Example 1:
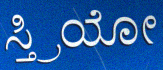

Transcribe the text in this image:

ಸ್ತ್ರಿಯೋ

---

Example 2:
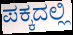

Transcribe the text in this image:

ಪಕ್ಕದಲ್ಲಿ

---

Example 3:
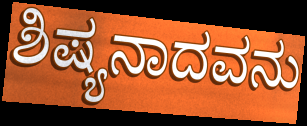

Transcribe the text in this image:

ಶಿಷ್ಯನಾದವನು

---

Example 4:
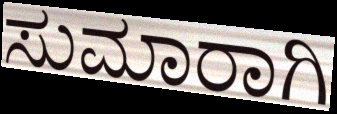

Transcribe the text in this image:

ಸುಮಾರಾಗಿ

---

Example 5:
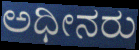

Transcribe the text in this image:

ಅಧೀನರು